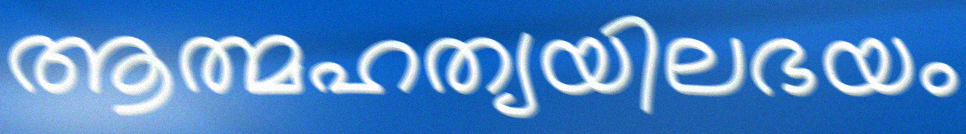
ആത്മഹത്യയിലഭയം